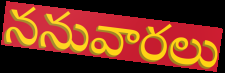
ననువారలు